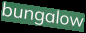
bungalow